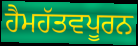
ਹੈਮਹੱਤਵਪੂਰਨ